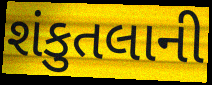
શંકુતલાની